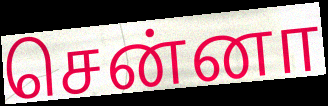
சென்னா